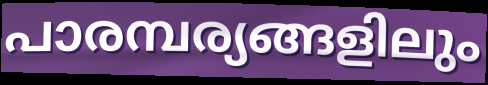
പാരമ്പര്യങ്ങളിലും